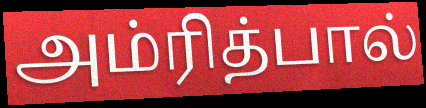
அம்ரித்பால்